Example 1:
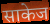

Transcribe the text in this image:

साकेज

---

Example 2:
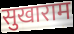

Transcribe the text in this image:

सुखाराम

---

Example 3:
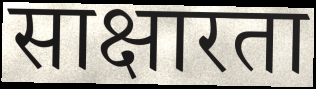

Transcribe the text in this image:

साक्षारता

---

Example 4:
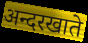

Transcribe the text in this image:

अन्दरखाते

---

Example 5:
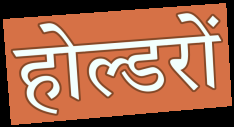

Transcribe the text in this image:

होल्‍डरों